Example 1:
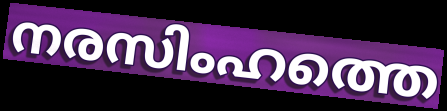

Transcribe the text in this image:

നരസിംഹത്തെ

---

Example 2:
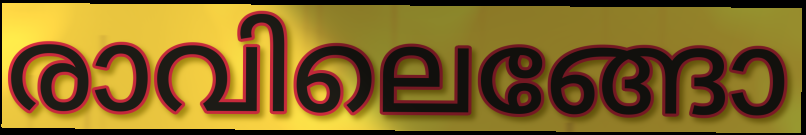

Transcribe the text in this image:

രാവിലെങ്ങോ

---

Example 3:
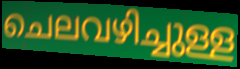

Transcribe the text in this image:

ചെലവഴിച്ചുള്ള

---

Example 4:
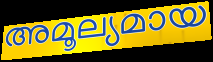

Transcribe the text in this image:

അമൂല്യമായ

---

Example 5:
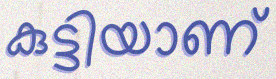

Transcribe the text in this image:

കുട്ടിയാണ്